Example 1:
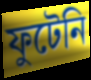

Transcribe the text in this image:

ফুটেনি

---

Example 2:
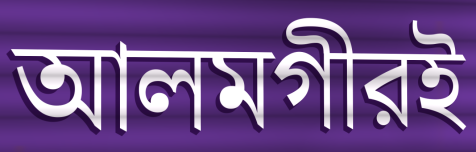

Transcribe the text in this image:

আলমগীরই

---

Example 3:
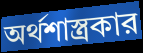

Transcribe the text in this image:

অর্থশাস্ত্রকার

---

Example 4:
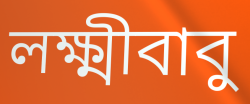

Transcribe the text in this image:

লক্ষ্মীবাবু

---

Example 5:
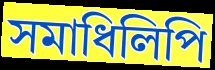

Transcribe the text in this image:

সমাধিলিপি